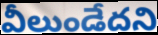
వీలుండేదని